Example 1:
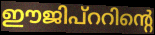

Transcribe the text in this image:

ഈജിപ്ററിന്റെ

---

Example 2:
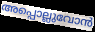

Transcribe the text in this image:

അപ്പൊല്ലുവോൻ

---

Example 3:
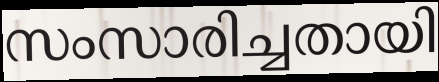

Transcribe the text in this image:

സംസാരിച്ചതായി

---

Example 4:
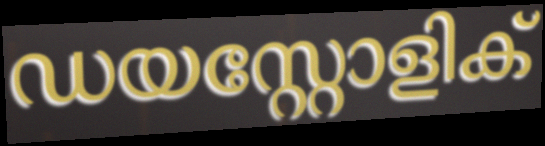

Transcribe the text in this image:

ഡയസ്റ്റോളിക്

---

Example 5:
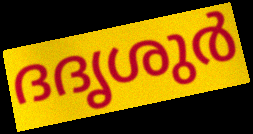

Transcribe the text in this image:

ദദൃശുർ